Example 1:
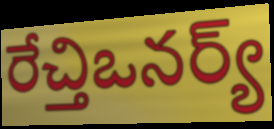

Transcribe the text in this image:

రేచ్తిఒనర్య్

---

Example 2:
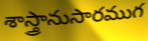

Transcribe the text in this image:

శాస్త్రానుసారముగ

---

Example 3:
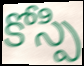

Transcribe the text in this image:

కోస్పి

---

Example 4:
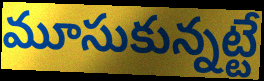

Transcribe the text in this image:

మూసుకున్నట్టే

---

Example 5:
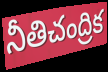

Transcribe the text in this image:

నీతిచంద్రిక